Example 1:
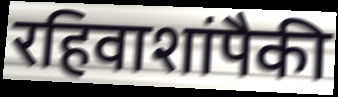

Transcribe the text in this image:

रहिवाशांपैकी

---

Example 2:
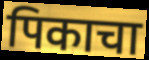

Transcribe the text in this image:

पिकाचा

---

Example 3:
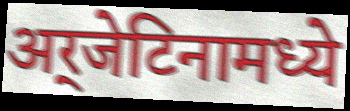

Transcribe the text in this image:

अर्जेटिनामध्ये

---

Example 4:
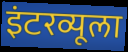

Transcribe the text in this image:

इंटरव्यूला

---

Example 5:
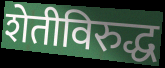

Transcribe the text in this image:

शेतीविरुद्ध